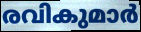
രവികുമാർ